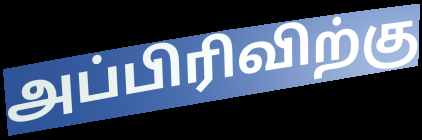
அப்பிரிவிற்கு